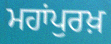
ਮਹਾਂਪੁਰਖ਼